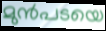
മുൻപടയെ